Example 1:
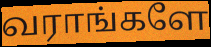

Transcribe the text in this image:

வராங்களே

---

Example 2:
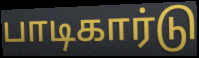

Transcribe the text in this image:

பாடிகார்டு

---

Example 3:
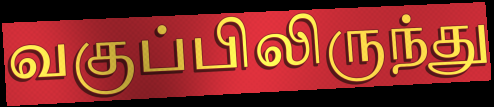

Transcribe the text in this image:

வகுப்பிலிருந்து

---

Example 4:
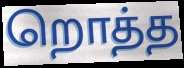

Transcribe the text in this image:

றொத்த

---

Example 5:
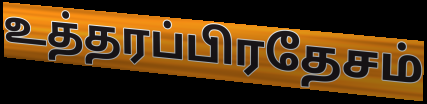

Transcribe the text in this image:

உத்தரப்பிரதேசம்